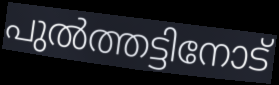
പുൽത്തട്ടിനോട്